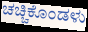
ಚಚ್ಚಿಕೊಂಡಳು